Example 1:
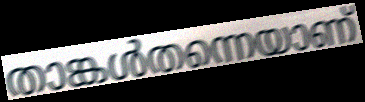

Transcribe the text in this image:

താങ്കൾതന്നെയാണ്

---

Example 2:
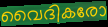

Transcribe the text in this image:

വൈദികരോ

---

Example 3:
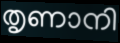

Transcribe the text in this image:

തൃണാനി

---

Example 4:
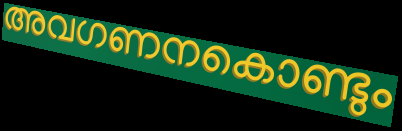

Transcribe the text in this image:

അവഗണനകൊണ്ടും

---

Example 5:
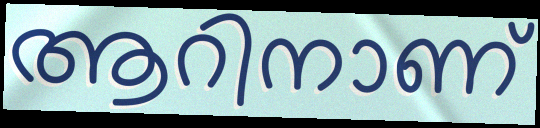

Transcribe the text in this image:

ആറിനാണ്